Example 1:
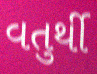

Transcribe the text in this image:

વતુર્થી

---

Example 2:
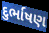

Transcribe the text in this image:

દુર્ભાષણ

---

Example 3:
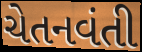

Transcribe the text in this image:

ચેતનવંતી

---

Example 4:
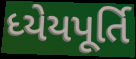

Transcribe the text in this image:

ધ્યેયપૂર્તિ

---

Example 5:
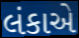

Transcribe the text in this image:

લંકાએ